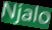
Njalo